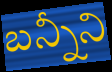
బన్నీని